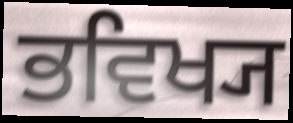
ਭਵਿਖ੍ਯ